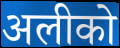
अलीको